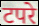
टपरे